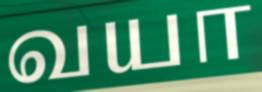
வயா